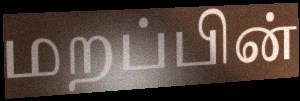
மறப்பின்